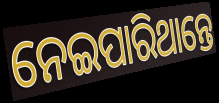
ନେଇପାରିଥାନ୍ତେ